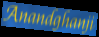
Anandghanji